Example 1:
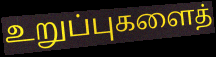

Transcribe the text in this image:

உறுப்புகளைத்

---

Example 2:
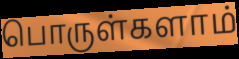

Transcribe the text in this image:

பொருள்களாம்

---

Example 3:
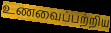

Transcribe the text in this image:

உணவைப்பற்றிய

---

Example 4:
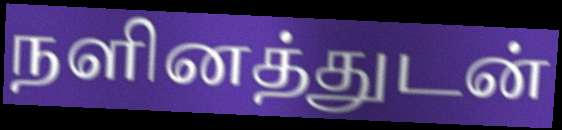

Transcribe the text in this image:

நளினத்துடன்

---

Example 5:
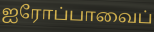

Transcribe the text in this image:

ஐரோப்பாவைப்